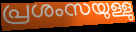
പ്രശംസയുള്ളു